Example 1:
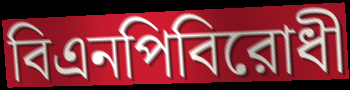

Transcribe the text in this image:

বিএনপিবিরোধী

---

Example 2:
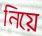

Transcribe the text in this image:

নিয়ে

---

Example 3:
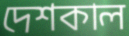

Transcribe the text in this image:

দেশকাল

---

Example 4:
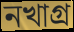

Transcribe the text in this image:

নখাগ্র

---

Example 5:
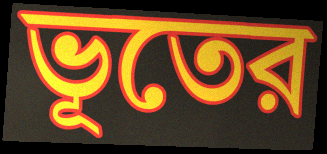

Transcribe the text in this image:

ভূতের